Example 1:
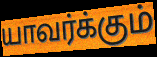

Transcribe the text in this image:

யாவர்க்கும்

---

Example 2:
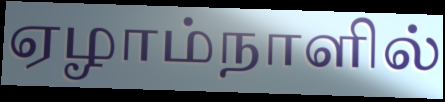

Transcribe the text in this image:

ஏழாம்நாளில்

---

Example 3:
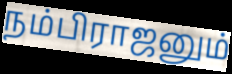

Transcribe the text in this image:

நம்பிராஜனும்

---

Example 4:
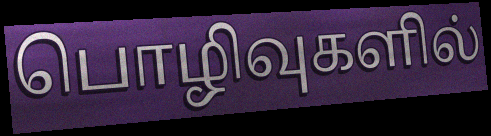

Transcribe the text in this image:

பொழிவுகளில்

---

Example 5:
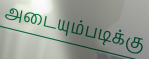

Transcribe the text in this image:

அடையும்படிக்கு